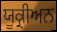
ਯੂਕ੍ਰੀਅਨ